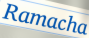
Ramacha